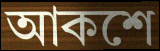
আকশে